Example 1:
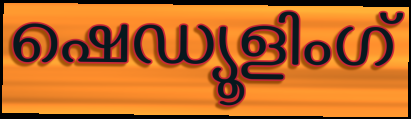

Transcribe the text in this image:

ഷെഡ്യൂളിംഗ്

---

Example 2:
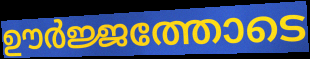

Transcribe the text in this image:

ഊർജ്ജത്തോടെ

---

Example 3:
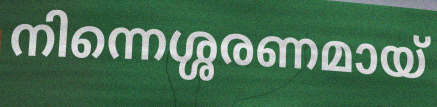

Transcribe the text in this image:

നിന്നെശ്ശരണമായ്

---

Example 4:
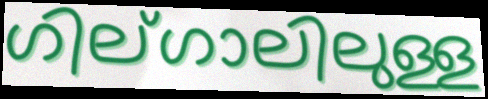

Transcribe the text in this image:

ഗില്ഗാലിലുള്ള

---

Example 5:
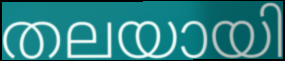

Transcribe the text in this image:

തലയായി